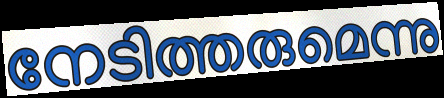
നേടിത്തരുമെന്നു